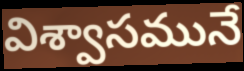
విశ్వాసమునే